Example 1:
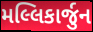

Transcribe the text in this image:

મલ્લિકાર્જુન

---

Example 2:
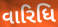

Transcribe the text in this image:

વારિધિ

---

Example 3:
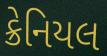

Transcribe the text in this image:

ક્રેનિયલ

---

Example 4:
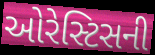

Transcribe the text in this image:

ઓરેસ્ટિસની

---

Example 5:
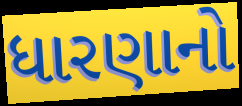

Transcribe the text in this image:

ધારણાનો